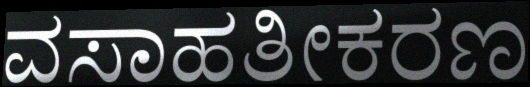
ವಸಾಹತೀಕರಣ